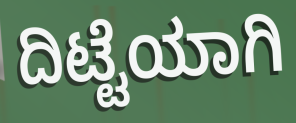
ದಿಟ್ಟೆಯಾಗಿ